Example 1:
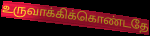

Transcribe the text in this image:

உருவாக்கிக்கொண்டதே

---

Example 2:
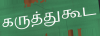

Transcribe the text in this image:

கருத்துகூட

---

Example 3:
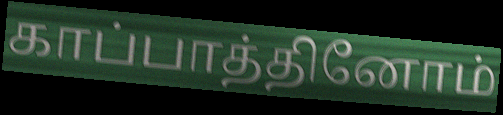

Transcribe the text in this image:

காப்பாத்தினோம்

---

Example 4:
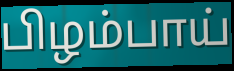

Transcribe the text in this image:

பிழம்பாய்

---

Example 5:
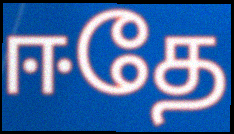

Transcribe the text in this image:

ஈதே